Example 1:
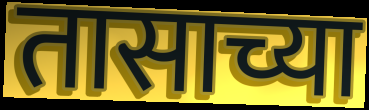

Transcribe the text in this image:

तासाच्या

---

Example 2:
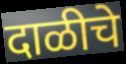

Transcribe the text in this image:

दाळीचे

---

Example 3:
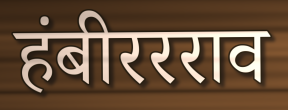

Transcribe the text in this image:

हंबीररराव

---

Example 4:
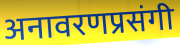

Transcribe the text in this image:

अनावरणप्रसंगी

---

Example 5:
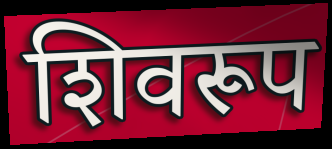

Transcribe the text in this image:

शिवरूप